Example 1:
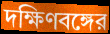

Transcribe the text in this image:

দক্ষিণবঙ্গের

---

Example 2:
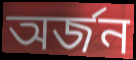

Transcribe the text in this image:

অর্জন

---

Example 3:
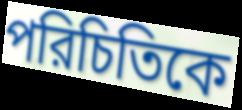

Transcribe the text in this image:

পরিচিতিকে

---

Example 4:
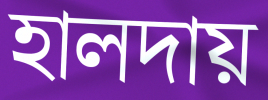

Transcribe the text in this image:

হালদায়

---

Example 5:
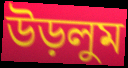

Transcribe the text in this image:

উড়লুম